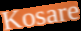
Kosare